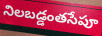
నిలబడ్డంతసేపూ